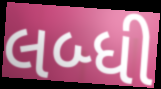
લબ્ધી